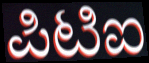
ಪಿಟಿಐ